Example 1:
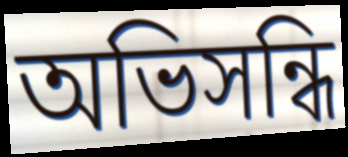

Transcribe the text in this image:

অভিসন্ধি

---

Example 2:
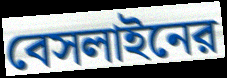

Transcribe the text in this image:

বেসলাইনের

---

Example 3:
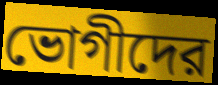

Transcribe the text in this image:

ভোগীদের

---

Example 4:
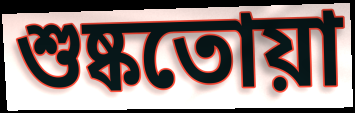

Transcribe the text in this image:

শুষ্কতোয়া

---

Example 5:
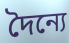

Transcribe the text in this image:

দৈন্যে